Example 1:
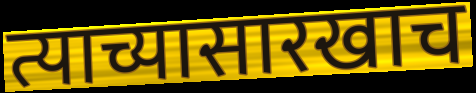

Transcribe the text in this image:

त्याच्यासारखाच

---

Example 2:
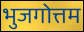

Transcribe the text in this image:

भुजगोत्तम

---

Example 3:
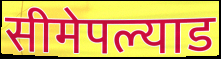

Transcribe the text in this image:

सीमेपल्याड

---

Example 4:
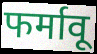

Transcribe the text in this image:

फर्मावू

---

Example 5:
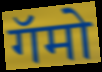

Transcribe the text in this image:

गॅमो